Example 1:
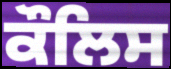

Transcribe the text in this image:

ਕੌਲਿਸ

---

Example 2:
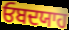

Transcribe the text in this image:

ਓਬਦਯਾਹ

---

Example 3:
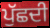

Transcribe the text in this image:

ਪੁੱਛਦੀ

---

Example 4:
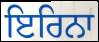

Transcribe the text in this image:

ਇਰਿਨਾ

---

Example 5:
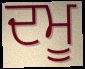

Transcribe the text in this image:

ਦਮੂ